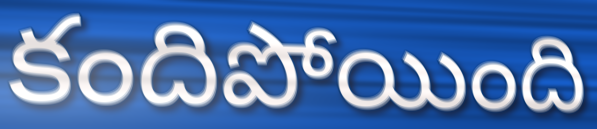
కందిపోయింది